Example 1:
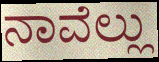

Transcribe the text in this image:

ನಾವೆಲ್ಲು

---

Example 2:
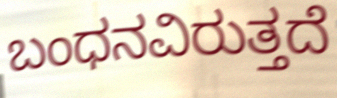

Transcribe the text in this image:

ಬಂಧನವಿರುತ್ತದೆ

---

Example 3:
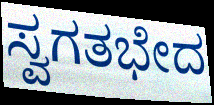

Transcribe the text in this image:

ಸ್ವಗತಭೇದ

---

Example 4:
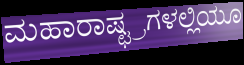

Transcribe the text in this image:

ಮಹಾರಾಷ್ಟ್ರಗಳಲ್ಲಿಯೂ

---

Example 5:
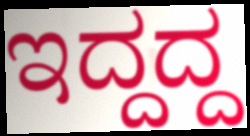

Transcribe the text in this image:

ಇದ್ದದ್ದ